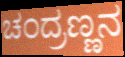
ಚಂದ್ರಣ್ಣನ